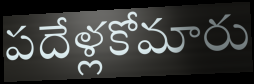
పదేళ్లకోమారు